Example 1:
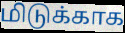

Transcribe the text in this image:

மிடுக்காக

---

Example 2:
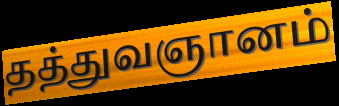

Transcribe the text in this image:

தத்துவஞானம்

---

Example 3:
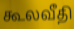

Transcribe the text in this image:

கூலவீதி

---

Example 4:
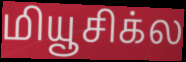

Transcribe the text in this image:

மியூசிக்ல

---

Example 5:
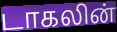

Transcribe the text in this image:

டாகலின்